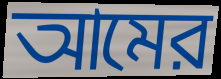
আমের